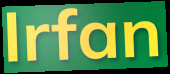
Irfan